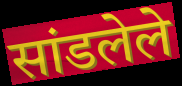
सांडलेले